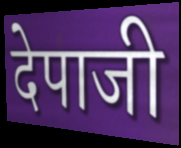
देपाजी